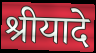
श्रीयादे